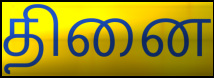
தினை